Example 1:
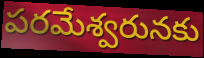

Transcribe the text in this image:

పరమేశ్వరునకు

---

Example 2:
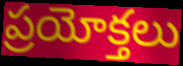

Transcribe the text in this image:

ప్రయోక్తలు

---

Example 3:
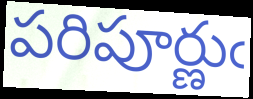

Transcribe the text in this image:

పరిపూర్ణుఁ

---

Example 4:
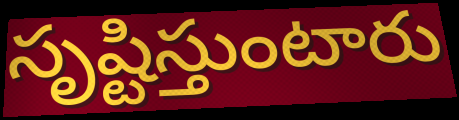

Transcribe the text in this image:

సృష్టిస్తుంటారు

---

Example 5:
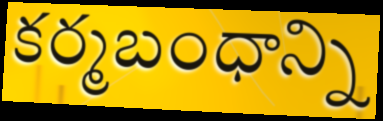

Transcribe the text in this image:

కర్మబంధాన్ని